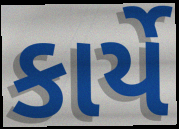
કાર્યે